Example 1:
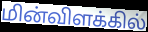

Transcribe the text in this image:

மின்விளக்கில்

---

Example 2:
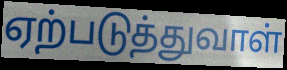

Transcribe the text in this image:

ஏற்படுத்துவாள்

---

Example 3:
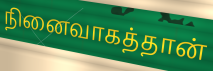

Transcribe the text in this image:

நினைவாகத்தான்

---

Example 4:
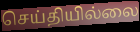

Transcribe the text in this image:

செய்தியில்லை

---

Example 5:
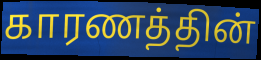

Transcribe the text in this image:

காரணத்தின்